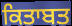
ਕਿਤਾਬਤ